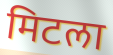
मिटला